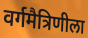
वर्गमैत्रिणीला